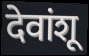
देवांशू